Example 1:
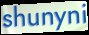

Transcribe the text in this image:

shunyni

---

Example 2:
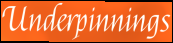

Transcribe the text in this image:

Underpinnings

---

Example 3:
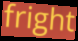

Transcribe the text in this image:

fright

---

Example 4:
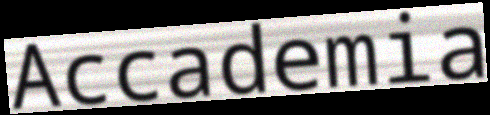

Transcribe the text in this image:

Accademia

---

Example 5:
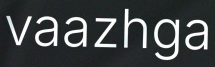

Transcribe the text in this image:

vaazhga